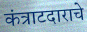
कंत्राटदाराचे